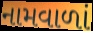
નામવાળાં